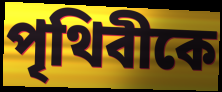
পৃথিবীকে